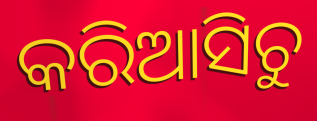
କରିଆସିଚୁ